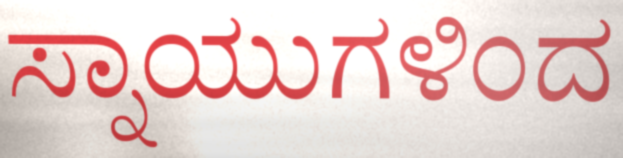
ಸ್ನಾಯುಗಳಿಂದ